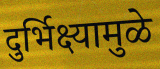
दुर्भिक्ष्यामुळे